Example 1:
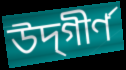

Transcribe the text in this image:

উদ্‌গীর্ণ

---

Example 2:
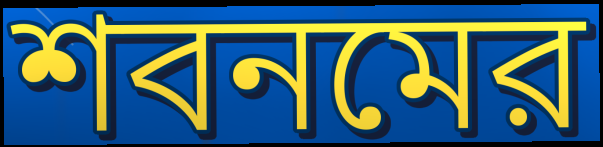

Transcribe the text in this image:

শবনমের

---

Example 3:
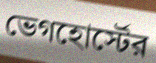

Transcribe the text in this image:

ভেগহোর্স্টের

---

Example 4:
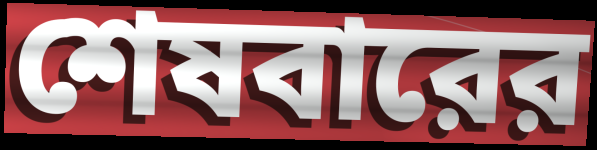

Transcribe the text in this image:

শেষবারের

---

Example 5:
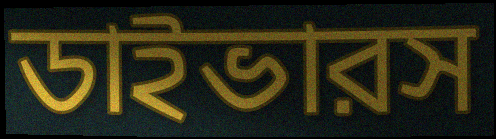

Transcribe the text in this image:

ডাইভারস